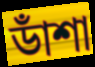
ডাঁশা